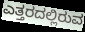
ಎತ್ತರದಲ್ಲಿರುವ